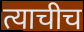
त्याचीच